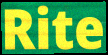
Rite